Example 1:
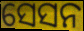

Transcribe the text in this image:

ସେସନ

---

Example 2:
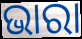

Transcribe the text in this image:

ଭାରା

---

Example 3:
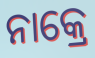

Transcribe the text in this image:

ନାକ୍ରେ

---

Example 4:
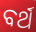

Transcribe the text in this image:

ବର୍ଥ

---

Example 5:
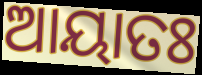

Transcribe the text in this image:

ଆୟାତଃ